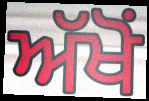
ਅੱਖੋਂ